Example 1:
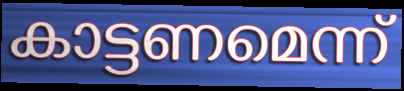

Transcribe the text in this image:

കാട്ടണമെന്ന്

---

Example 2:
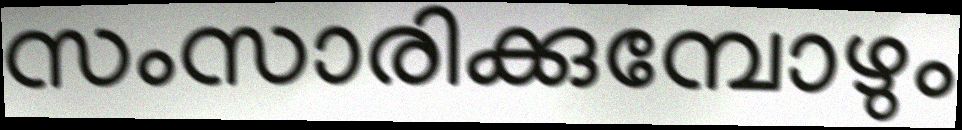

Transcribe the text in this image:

സംസാരിക്കുമ്പോഴും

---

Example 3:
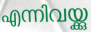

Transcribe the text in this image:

എന്നിവയ്ക്കു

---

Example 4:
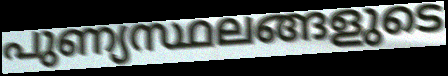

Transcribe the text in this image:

പുണ്യസ്ഥലങ്ങളുടെ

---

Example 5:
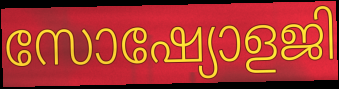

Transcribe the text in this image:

സോഷ്യോളജി